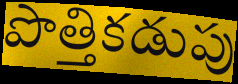
పొత్తికడుపు